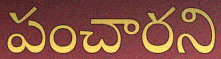
పంచారని